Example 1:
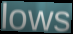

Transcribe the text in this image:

lows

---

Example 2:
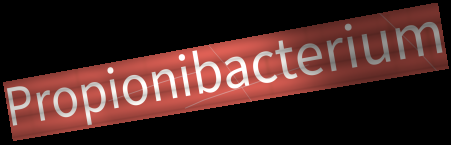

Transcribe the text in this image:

Propionibacterium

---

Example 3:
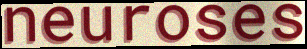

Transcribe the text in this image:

neuroses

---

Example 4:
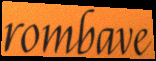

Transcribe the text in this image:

rombave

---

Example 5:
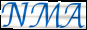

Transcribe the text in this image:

NMA